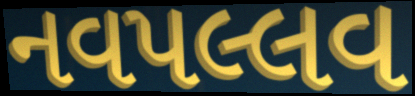
નવપલ્લવ